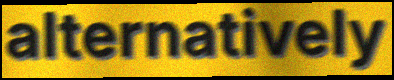
alternatively